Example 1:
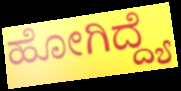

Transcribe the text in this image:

ಹೋಗಿದ್ದ್ಯೆ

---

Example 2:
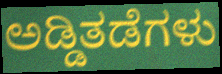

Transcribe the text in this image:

ಅಡ್ಡಿತಡೆಗಳು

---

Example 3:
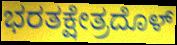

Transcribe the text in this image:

ಭರತಕ್ಷೇತ್ರದೊಳ್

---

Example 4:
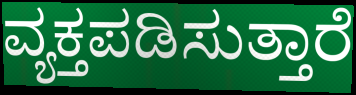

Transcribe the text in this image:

ವ್ಯಕ್ತಪಡಿಸುತ್ತಾರೆ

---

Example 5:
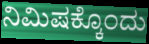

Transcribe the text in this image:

ನಿಮಿಷಕ್ಕೊಂದು